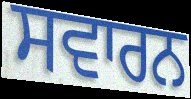
ਸਵਾਰਨ